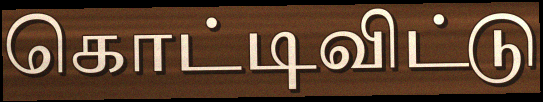
கொட்டிவிட்டு